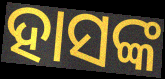
ହାସଙ୍କ